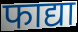
फाद्या